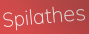
Spilathes